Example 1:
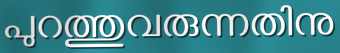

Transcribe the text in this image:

പുറത്തുവരുന്നതിനു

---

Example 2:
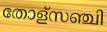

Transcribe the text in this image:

തോള്സഞ്ചി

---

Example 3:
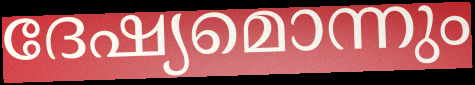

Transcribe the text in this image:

ദേഷ്യമൊന്നും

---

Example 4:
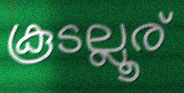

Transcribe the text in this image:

കൂടല്ലൂര്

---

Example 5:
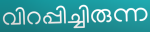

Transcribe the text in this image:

വിറപ്പിച്ചിരുന്ന